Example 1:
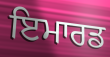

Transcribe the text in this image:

ਇਮਾਰਡ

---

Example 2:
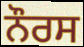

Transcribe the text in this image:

ਨੌਰਸ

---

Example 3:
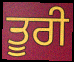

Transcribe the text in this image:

ਤੂਰੀ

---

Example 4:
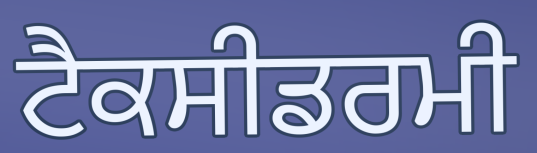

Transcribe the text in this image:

ਟੈਕਸੀਡਰਮੀ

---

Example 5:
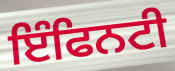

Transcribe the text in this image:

ਇੰਫਿਨਟੀ